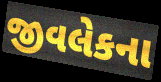
જીવલેકના